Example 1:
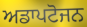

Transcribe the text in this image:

ਅਡਾਪਟੋਜਨ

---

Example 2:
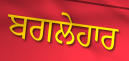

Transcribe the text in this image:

ਬਗਲੇਹਾਰ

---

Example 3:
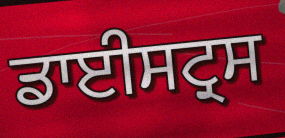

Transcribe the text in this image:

ਡਾਈਸਟ੍ਰਸ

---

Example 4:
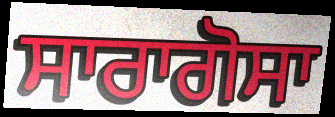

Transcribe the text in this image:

ਸਾਰਾਗੋਸਾ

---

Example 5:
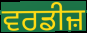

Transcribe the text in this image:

ਵਰਡੀਜ਼